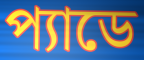
প্যাডে